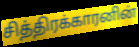
சித்திரக்காரனின்